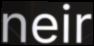
neir